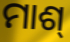
ମାଶ୍